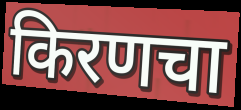
किरणचा